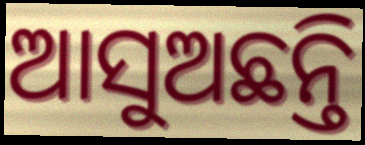
ଆସୁଅଛନ୍ତି